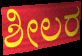
ಶೀಲರ